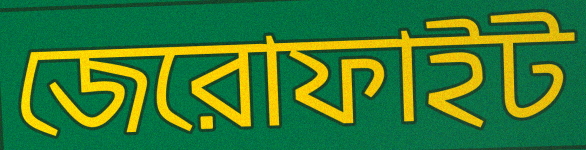
জেরোফাইট